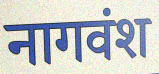
नागवंश